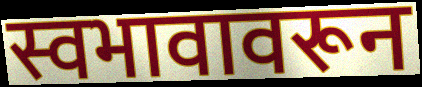
स्वभावावरून